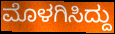
ಮೊಳಗಿಸಿದ್ದು